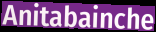
Anitabainche